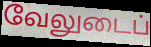
வேலுடைப்